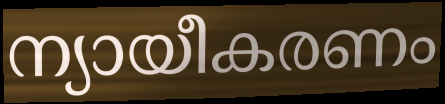
ന്യായീകരണം